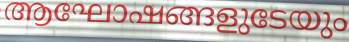
ആഘോഷങ്ങളുടേയും